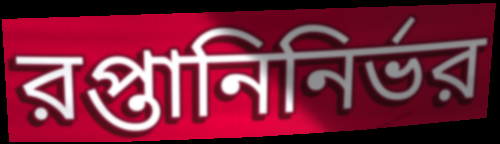
রপ্তানিনির্ভর